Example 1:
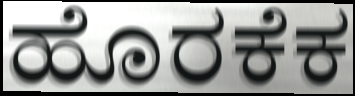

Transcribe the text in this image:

ಹೊರಕೆಕ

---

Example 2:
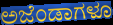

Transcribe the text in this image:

ಅಜೆಂಡಾಗಳೂ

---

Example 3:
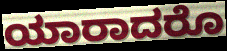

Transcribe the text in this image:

ಯಾರಾದರೊ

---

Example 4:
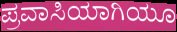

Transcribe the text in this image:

ಪ್ರವಾಸಿಯಾಗಿಯೂ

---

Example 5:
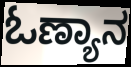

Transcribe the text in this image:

ಓಣ್ಯಾನ